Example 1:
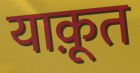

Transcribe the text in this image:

याक़ूत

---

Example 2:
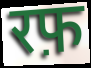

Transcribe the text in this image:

रफ़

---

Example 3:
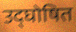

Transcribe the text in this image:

उद्घोषित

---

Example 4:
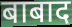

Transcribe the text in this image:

बाबाद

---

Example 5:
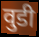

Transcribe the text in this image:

वुडी